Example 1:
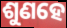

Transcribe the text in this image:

ଶୁଣହେ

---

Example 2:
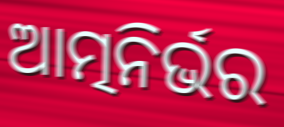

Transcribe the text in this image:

ଆତ୍ମନିର୍ଭର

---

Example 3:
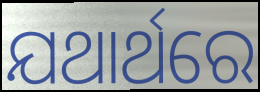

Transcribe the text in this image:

ଯଥାର୍ଥରେ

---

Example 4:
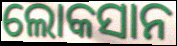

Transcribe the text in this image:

ଲୋକସାନ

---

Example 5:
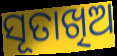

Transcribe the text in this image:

ସୂତାଖିଅ